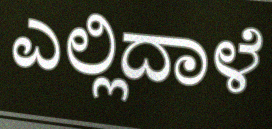
ಎಲ್ಲಿದಾಳೆ